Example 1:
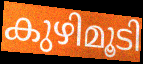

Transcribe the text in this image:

കുഴിമൂടി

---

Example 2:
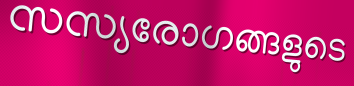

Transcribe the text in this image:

സസ്യരോഗങ്ങളുടെ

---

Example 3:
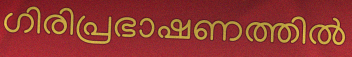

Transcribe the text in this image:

ഗിരിപ്രഭാഷണത്തിൽ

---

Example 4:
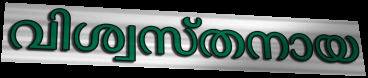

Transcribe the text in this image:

വിശ്വസ്തനായ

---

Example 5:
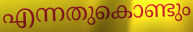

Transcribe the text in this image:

എന്നതുകൊണ്ടും